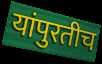
यांपुरतीच